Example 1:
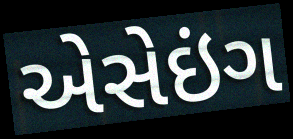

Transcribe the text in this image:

એસેઇંગ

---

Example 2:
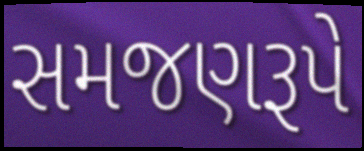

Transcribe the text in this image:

સમજણરૂપે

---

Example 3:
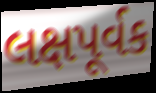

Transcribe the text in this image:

લક્ષપૂર્વક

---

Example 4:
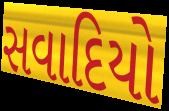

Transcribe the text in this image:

સવાદિયો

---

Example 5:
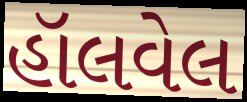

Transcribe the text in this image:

હૉલવેલ